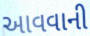
આવવાની